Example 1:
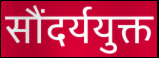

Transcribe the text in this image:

सौंदर्ययुक्त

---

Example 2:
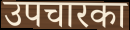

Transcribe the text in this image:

उपचारका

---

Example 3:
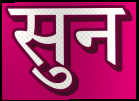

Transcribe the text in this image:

सुन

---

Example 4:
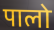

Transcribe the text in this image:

पालो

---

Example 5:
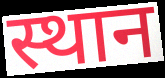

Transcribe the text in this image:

स्थान